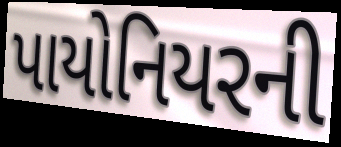
પાયોનિયરની